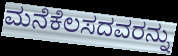
ಮನೆಕೆಲಸದವರನ್ನು